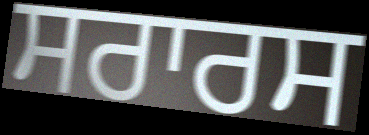
ਸਰਾਰਸ